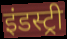
इंडस्ट्री